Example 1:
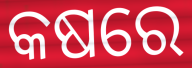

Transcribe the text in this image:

କଷରେ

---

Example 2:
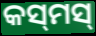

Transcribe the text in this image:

କସ୍‌ମସ୍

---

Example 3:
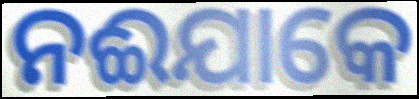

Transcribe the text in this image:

ନଈଯାକେ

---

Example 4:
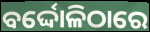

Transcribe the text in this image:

ବର୍ଦ୍ଦୋଳିଠାରେ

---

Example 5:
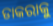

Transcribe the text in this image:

ଡାକରାକୁ